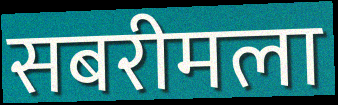
सबरीमला